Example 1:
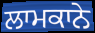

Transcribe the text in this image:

ਲਾਮਕਾਨੇ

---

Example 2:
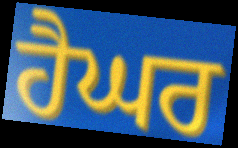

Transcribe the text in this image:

ਹੈਘਰ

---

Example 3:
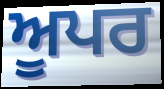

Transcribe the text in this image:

ਅੂਪਰ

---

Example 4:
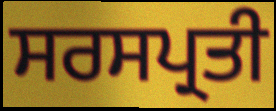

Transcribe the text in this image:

ਸਰਸਪ੍ਰਤੀ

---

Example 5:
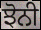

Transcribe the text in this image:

ਝੋਨੀ